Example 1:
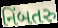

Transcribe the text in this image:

નિંબતરુ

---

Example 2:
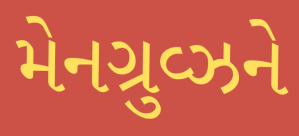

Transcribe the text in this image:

મેનગ્રુવ્ઝને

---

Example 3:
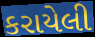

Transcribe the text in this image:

કરાયેલી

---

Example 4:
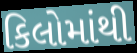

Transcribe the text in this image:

કિલોમાંથી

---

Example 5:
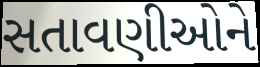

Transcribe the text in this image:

સતાવણીઓને